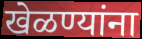
खेळण्यांना